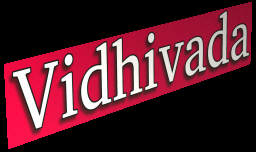
Vidhivada